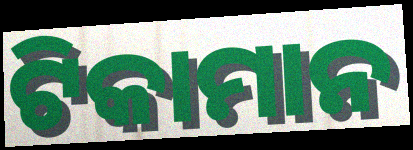
ଟିକାମାନ